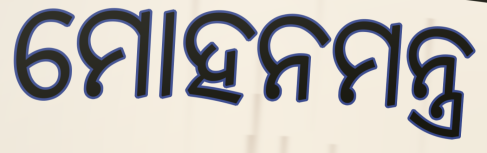
ମୋହନମନ୍ତ୍ର